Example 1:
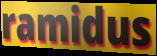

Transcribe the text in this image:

ramidus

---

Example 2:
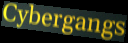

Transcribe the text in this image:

Cybergangs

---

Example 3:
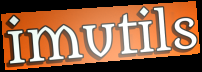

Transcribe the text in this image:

imutils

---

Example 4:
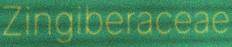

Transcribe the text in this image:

Zingiberaceae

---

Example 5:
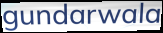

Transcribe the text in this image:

gundarwala